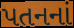
પતનનાં